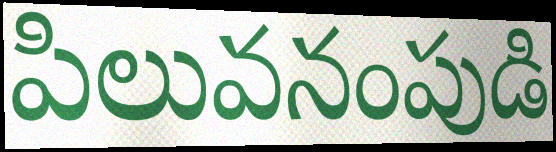
పిలువనంపుడి